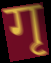
गृ